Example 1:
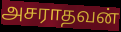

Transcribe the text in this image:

அசராதவன்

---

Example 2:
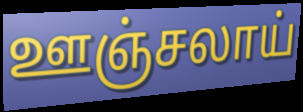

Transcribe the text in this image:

ஊஞ்சலாய்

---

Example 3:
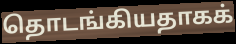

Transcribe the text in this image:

தொடங்கியதாகக்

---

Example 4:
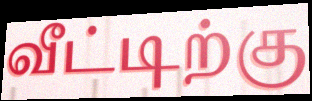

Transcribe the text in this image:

வீட்டிற்கு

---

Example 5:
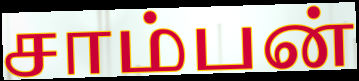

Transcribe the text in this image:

சாம்பன்